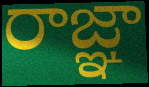
రాజ్ఞా